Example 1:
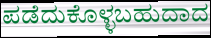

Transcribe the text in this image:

ಪಡೆದುಕೊಳ್ಳಬಹುದಾದ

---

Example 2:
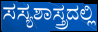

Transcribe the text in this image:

ಸಸ್ಯಶಾಸ್ತ್ರದಲ್ಲಿ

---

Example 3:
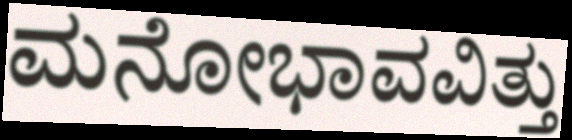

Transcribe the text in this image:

ಮನೋಭಾವವಿತ್ತು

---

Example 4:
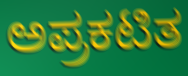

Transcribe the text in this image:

ಅಪ್ರಕಟಿತ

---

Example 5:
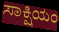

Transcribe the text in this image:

ಸಾಕ್ಷಿಯಂ